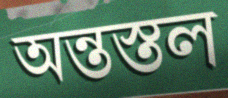
অন্তস্তল